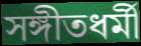
সঙ্গীতধর্মী